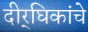
दीर्घिकांचे